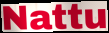
Nattu